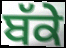
ਬੱਕੇ